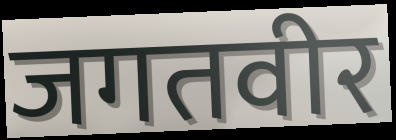
जगतवीर